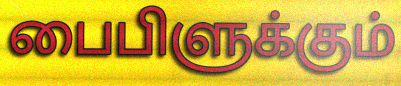
பைபிளுக்கும்